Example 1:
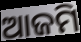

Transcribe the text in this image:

ଆଜମି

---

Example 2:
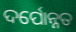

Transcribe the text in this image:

ଦର୍ପୋନ୍ନତ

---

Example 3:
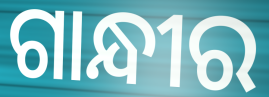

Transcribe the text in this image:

ଗାନ୍ଧୀର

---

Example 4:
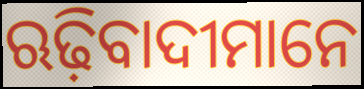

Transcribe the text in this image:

ଋଢ଼ିବାଦୀମାନେ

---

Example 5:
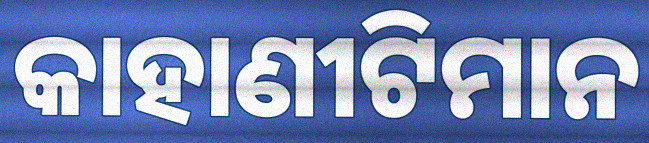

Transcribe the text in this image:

କାହାଣୀଟିମାନ